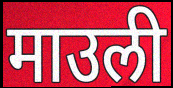
माउली